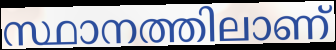
സ്ഥാനത്തിലാണ്